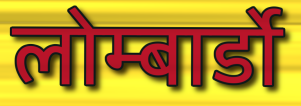
लोम्बार्डो